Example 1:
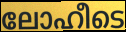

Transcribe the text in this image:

ലോഹീടെ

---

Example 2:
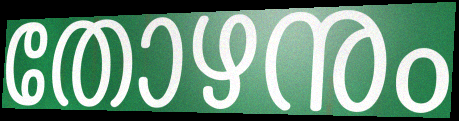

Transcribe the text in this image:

തോഴനും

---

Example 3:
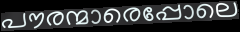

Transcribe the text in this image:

പൗരന്മാരെപ്പോലെ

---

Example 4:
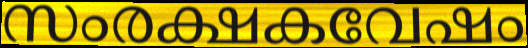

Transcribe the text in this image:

സംരക്ഷകവേഷം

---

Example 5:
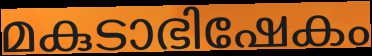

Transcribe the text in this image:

മകുടാഭിഷേകം